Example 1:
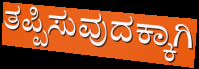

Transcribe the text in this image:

ತಪ್ಪಿಸುವುದಕ್ಕಾಗಿ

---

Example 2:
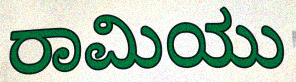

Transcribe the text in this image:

ರಾಮಿಯು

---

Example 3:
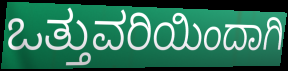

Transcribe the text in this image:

ಒತ್ತುವರಿಯಿಂದಾಗಿ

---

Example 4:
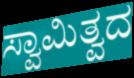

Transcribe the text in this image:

ಸ್ವಾಮಿತ್ವದ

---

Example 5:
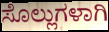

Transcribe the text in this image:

ಸೊಲ್ಲುಗಳಾಗಿ